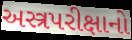
અસ્ત્રપરીક્ષાનો